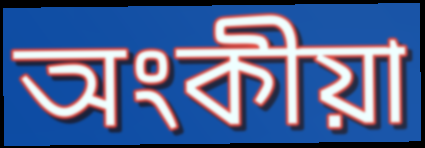
অংকীয়া